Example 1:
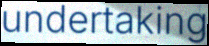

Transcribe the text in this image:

undertaking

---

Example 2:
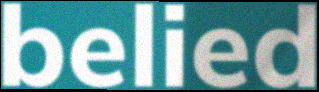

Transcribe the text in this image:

belied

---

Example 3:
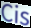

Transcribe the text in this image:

Cis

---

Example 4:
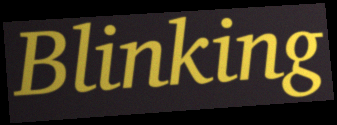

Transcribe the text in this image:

Blinking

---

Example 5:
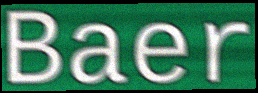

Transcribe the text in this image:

Baer